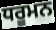
ਧਰੂਮਨ